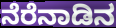
ನೆರೆನಾಡಿನ